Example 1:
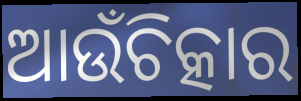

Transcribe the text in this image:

ଆଉଁଚିତ୍କାର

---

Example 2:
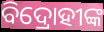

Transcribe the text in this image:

ବିଦ୍ରୋହୀଙ୍କ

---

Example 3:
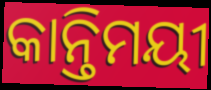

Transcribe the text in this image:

କାନ୍ତିମୟୀ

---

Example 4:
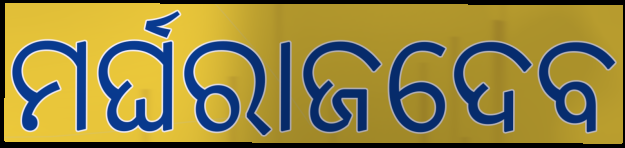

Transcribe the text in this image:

ମର୍ଘରାଜଦେବ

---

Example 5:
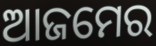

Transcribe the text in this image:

ଆଜମେର